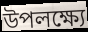
উপলক্ষ্যে